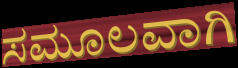
ಸಮೂಲವಾಗಿ